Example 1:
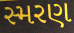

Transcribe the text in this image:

સ્‍મરણ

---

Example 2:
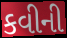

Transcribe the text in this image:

કવીની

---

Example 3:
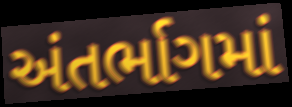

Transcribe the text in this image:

અંતર્ભાગમાં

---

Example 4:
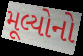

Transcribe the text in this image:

મૂલ્યોનો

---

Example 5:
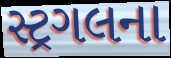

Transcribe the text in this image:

સ્ટ્રગલના